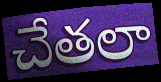
చేతలా